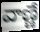
వాణ్ణే